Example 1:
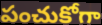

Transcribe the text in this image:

పంచుకోగా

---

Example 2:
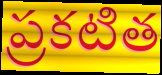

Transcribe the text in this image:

ప్రకటిత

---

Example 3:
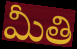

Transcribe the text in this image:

మీతి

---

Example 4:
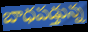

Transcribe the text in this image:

బాధపడ్తున్న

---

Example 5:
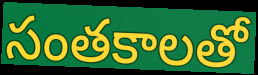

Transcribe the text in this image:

సంతకాలతో